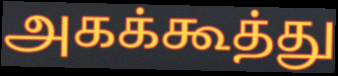
அகக்கூத்து